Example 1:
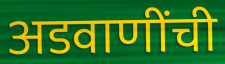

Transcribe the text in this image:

अडवाणींची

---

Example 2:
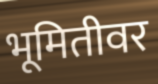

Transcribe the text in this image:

भूमितीवर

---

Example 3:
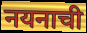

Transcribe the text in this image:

नयनाची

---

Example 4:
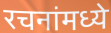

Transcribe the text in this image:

रचनांमध्ये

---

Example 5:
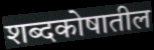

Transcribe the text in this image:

शब्दकोषातील